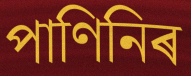
পাণিনিৰ